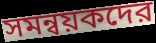
সমন্বয়কদের